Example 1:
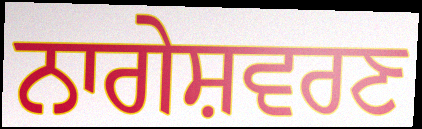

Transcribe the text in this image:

ਨਾਗੇਸ਼ਵਰਣ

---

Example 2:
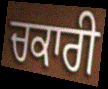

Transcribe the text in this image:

ਚਕਾਰੀ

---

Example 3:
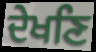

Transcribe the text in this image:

ਦੇਖਣਿ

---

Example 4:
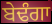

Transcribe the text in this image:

ਬੇਢੰਗਾ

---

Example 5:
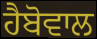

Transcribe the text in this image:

ਹੈਬੋਵਾਲ